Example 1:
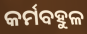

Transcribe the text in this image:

କର୍ମବହୁଳ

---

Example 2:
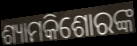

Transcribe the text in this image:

ଶ୍ୟାମକିଶୋରଙ୍କ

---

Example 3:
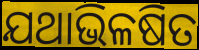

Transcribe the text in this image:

ଯଥାଭିଳଷିତ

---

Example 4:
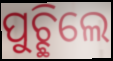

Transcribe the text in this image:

ପୁଚ୍ଛିଲେ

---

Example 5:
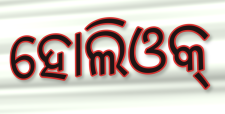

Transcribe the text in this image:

ହୋଲିଓକ୍